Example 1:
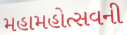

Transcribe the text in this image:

મહામહોત્સવની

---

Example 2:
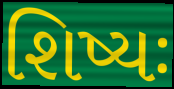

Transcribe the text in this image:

શિષ્યઃ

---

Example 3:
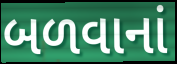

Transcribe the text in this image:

બળવાનાં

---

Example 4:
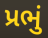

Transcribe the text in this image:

પ્રભું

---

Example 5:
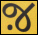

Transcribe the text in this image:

જ઼